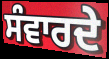
ਸੰਵਾਰਦੇ